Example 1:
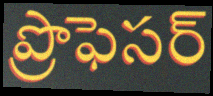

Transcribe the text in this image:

ప్రొఫెసర్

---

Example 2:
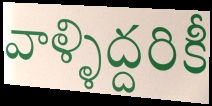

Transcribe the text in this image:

వాళ్ళిద్దరికీ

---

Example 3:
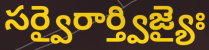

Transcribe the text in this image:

సర్వైరార్త్విజ్యైః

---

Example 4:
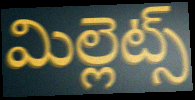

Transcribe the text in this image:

మిల్లెట్స్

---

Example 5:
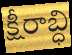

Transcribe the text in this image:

క్షీరాబ్ధి